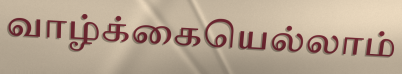
வாழ்க்கையெல்லாம்